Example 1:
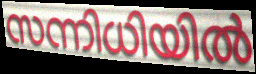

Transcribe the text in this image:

സന്നിധിയിൽ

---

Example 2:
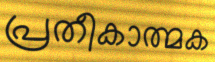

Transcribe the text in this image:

പ്രതീകാത്മക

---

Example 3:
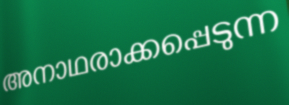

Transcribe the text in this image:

അനാഥരാക്കപ്പെടുന്ന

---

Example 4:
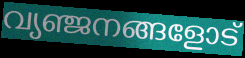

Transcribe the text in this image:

വ്യഞ്ജനങ്ങളോട്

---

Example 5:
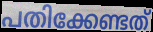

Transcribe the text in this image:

പതിക്കേണ്ടത്